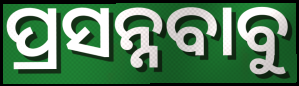
ପ୍ରସନ୍ନବାବୁ